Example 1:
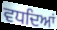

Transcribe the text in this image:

ਵਧਦਿਆਂ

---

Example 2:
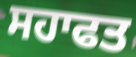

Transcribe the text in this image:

ਸਹਾਫਤ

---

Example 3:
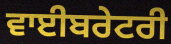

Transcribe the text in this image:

ਵਾਈਬਰੇਟਰੀ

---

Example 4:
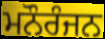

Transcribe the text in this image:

ਮਨੌਰੰਜਨ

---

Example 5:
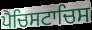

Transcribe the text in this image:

ਪੈਚਿਸਟਾਚਿਸ